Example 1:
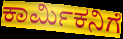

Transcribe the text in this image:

ಕಾರ್ಮಿಕನಿಗೆ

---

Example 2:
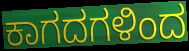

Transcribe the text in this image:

ಕಾಗದಗಳಿಂದ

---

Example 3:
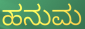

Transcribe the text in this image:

ಹನುಮ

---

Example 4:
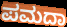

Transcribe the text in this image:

ಪಮದಾ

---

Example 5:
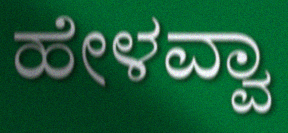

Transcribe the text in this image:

ಹೇಳವ್ವಾ